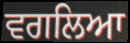
ਵਗਲਿਆ